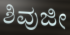
ಶಿವುಜೀ